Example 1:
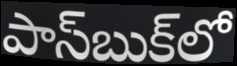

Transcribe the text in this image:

పాస్‌బుక్‌లో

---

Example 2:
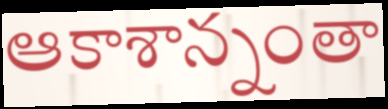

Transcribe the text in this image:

ఆకాశాన్నంతా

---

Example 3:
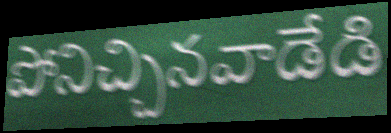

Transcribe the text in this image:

పోనిచ్చినవాడేడి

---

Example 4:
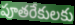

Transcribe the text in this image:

పూతరేకులకు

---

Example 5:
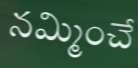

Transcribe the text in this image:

నమ్మించే